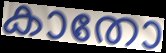
കാതോ